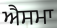
ਐਸਮਾ